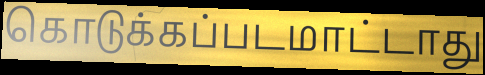
கொடுக்கப்படமாட்டாது